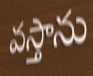
వస్తాను